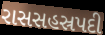
રાસસહસ્રપદી